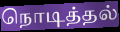
நொடித்தல்